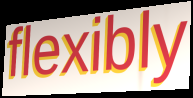
flexibly